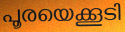
പൂരയെക്കൂടി